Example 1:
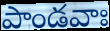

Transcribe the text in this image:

పాండవాః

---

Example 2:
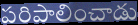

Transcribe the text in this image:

పరిపాలించాడు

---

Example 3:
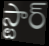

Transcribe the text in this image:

స్టార్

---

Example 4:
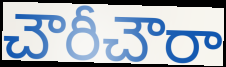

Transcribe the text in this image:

చౌరీచౌరా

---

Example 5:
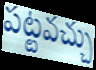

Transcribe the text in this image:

పట్టవచ్చు